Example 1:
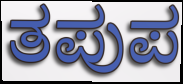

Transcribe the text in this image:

ತಪುಪ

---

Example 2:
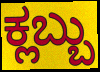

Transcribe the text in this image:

ಕ್ಲಬ್ಬು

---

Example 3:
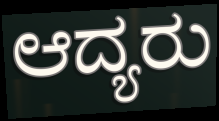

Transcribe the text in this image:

ಆದ್ಯರು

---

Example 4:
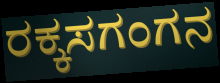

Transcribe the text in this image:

ರಕ್ಕಸಗಂಗನ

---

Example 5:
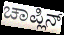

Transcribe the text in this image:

ಚಾಪ್ಲಿನ್